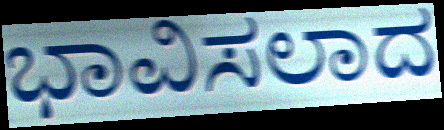
ಭಾವಿಸಲಾದ